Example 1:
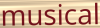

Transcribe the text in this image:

musical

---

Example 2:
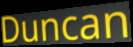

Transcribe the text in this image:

Duncan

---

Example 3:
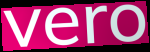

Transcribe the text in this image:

vero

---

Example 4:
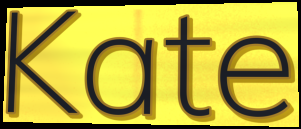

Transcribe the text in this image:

Kate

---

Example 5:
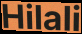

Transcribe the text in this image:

Hilali